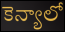
కెన్యాలో